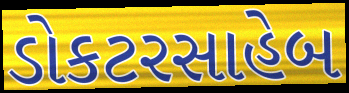
ડોકટરસાહેબ